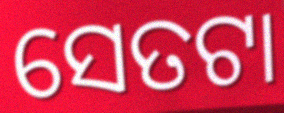
ସେତଟା